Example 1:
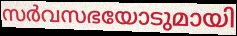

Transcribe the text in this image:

സർവസഭയോടുമായി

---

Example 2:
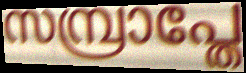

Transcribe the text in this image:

സമ്പ്രാപ്തേ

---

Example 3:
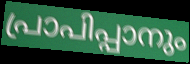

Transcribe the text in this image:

പ്രാപിപ്പാനും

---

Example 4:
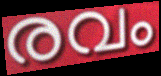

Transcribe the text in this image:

രവം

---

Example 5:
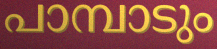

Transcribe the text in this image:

പാമ്പാടും